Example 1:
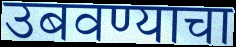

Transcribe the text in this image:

उबवण्याचा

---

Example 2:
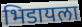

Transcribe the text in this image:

भिडायला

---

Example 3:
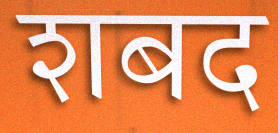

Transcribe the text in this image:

शबद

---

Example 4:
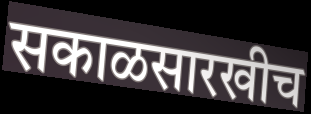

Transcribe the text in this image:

सकाळसारखीच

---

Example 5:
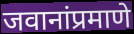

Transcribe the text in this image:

जवानांप्रमाणे